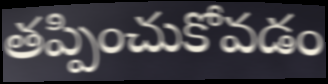
తప్పించుకోవడం